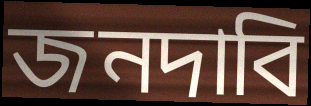
জনদাবি